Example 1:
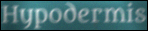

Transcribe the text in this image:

Hypodermis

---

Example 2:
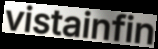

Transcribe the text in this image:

vistainfin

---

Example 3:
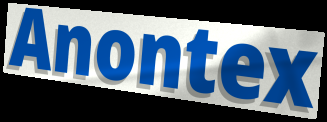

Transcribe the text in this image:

Anontex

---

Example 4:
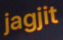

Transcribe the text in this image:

jagjit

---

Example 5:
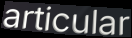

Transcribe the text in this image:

articular